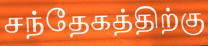
சந்தேகத்திற்கு